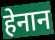
हेनान